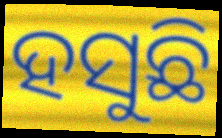
ହସୁଛି